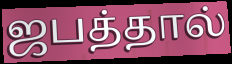
ஜபத்தால்